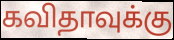
கவிதாவுக்கு